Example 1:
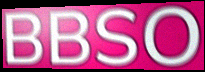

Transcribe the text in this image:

BBSO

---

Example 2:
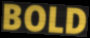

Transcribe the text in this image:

BOLD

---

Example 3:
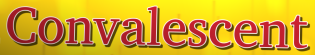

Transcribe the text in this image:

Convalescent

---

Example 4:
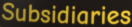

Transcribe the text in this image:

Subsidiaries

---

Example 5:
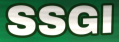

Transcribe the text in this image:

SSGI